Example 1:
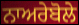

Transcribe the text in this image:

ਨਾਅਰੇਬੋਲੇ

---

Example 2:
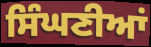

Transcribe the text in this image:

ਸਿੰਘਣੀਆਂ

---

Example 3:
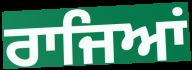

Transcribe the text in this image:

ਰਾਜਿਆਂ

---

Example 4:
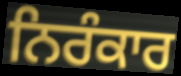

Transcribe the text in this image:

ਨਿਰੰਕਾਰ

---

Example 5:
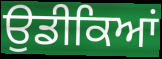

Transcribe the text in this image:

ਉਡੀਕਿਆਂ